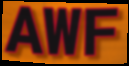
AWF